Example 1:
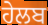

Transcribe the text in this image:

ਹੇਲਬ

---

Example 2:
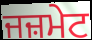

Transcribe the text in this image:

ਜਜ਼ਮੇਟ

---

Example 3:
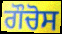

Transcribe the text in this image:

ਗੌਚੋਸ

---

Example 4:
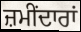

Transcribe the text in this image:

ਜ਼ਮੀਂਦਾਰਾਂ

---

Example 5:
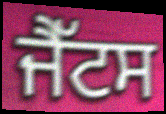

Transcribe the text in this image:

ਜੈੱਟਸ